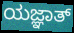
ಯಜ್ಞಾತ್